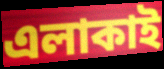
এলাকাই